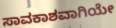
ಸಾವಕಾಶವಾಗಿಯೇ